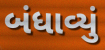
બંધાવ્યું